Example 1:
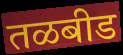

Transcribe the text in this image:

तळबीड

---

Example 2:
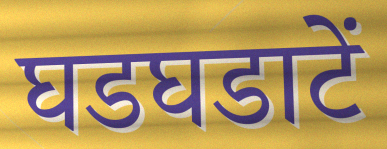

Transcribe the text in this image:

घडघडाटें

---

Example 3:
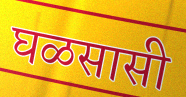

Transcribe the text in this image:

घळसासी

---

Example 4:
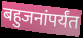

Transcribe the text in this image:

बहुजनांपर्यंत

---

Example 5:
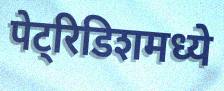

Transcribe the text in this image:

पेट्रिडिशमध्ये